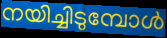
നയിച്ചിടുമ്പോൾ